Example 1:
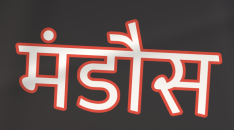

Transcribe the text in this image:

मंडौस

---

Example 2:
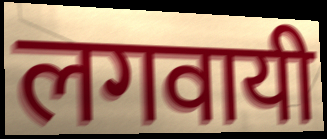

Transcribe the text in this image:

लगवायी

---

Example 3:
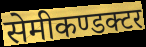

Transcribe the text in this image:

सेमीकण्डक्टर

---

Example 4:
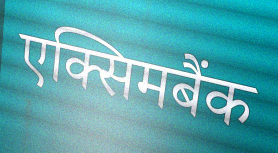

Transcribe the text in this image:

एक्सिमबैंक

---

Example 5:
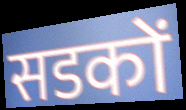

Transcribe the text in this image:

सडकों